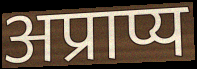
अप्राप्य